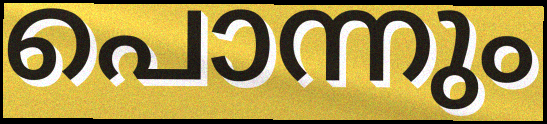
പൊന്നും